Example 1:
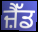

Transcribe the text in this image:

ਜ਼ੈੱਡ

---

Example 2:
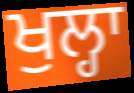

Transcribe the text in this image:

ਖੁਲ੍ਹਾ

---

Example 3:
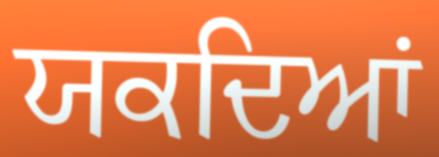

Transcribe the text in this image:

ਯਕਦਿਆਂ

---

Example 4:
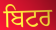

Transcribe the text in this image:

ਬਿਟਰ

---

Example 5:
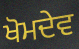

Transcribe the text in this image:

ਖੋਮਦੇਵ